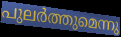
പുലർത്തുമെന്നു